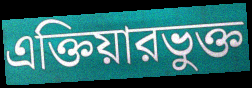
এক্তিয়ারভুক্ত